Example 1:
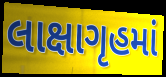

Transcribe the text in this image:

લાક્ષાગૃહમાં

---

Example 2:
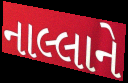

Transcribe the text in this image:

નાલ્લાને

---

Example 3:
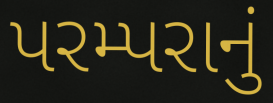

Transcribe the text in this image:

પરમ્પરાનું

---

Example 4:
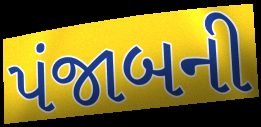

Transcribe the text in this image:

પંજાબની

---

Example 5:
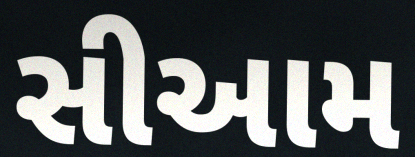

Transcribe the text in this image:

સીઆમ